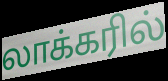
லாக்கரில்